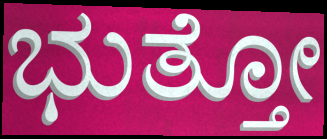
ಭುತ್ತೋ